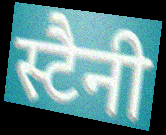
स्टैनी